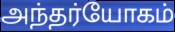
அந்தர்யோகம்